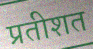
प्रतीशत